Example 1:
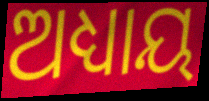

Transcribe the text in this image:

ଅଧ୍ୟାୟ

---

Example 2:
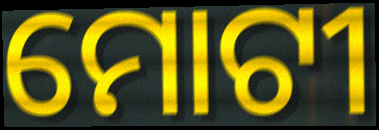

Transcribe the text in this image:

ମୋଟୀ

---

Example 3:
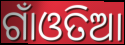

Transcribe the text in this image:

ଗାଁଓତିଆ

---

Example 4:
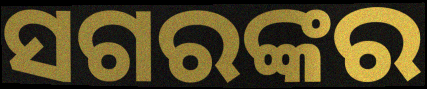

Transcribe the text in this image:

ସଗରଙ୍କର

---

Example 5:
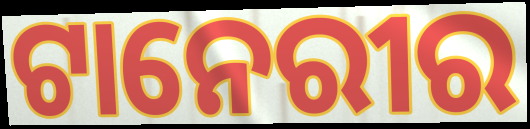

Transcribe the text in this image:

ଟାନେରୀର